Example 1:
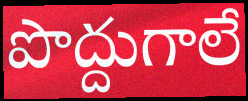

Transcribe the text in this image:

పొద్దుగాలే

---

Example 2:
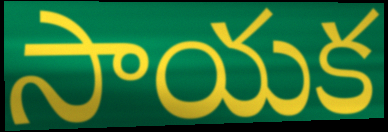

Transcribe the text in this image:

సాయక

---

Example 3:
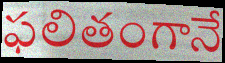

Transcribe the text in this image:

ఫలితంగానే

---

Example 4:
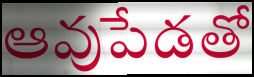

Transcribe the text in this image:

ఆవుపేడతో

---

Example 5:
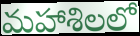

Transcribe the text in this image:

మహాశిలలో